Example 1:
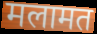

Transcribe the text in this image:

मलामत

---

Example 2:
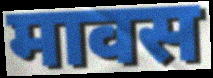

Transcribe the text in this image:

मावस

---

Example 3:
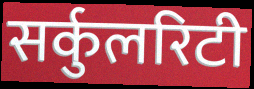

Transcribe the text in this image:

सर्कुलरिटी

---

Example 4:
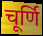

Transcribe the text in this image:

चूर्णि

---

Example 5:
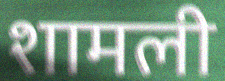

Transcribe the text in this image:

शामली